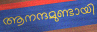
ആനന്ദമുണ്ടായി